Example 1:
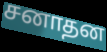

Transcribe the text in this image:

சனாதன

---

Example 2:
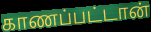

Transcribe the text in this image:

காணப்பட்டான்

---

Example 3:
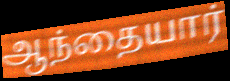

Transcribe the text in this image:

ஆந்தையார்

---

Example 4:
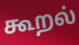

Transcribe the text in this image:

கூறல்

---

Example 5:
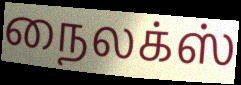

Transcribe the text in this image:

நைலக்ஸ்